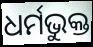
ଧର୍ମଭୁକ୍ତ